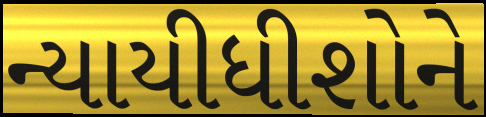
ન્યાયીધીશોને